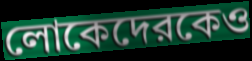
লোকেদেরকেও